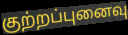
குற்றப்புனைவு